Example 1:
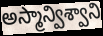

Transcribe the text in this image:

అస్మాన్విశ్వాని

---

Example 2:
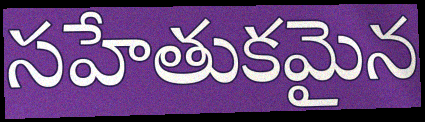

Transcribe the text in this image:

సహేతుకమైన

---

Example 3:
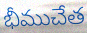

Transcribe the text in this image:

భీముచేత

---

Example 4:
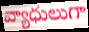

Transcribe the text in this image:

వ్యాధులుగా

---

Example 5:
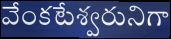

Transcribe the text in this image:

వేంకటేశ్వరునిగా